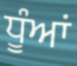
ਧੂੰਆਂ